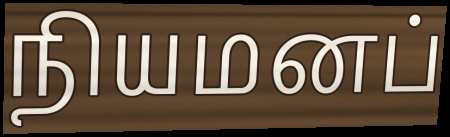
நியமனப்